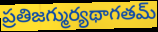
ప్రతిజగ్ముర్యథాగతమ్